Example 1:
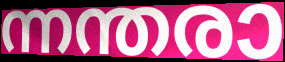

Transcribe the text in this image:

ന്നന്തരാ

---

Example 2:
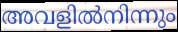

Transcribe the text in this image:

അവളിൽനിന്നും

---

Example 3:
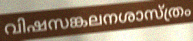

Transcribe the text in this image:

വിഷസങ്കലനശാസ്ത്രം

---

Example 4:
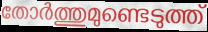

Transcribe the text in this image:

തോർത്തുമുണ്ടെടുത്ത്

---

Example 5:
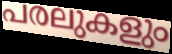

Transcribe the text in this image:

പരലുകളും